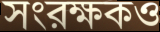
সংরক্ষকও